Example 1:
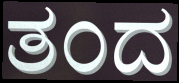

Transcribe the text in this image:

ತಂದ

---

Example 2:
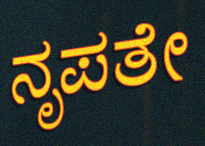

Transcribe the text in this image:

ನೃಪತೇ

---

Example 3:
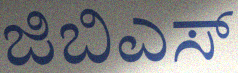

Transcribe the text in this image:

ಜಿಬಿಎಸ್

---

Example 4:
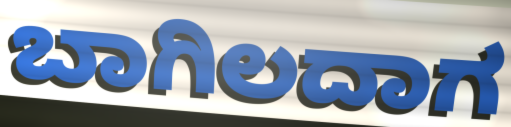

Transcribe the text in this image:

ಬಾಗಿಲದಾಗ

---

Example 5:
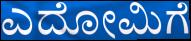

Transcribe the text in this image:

ಎದೋಮಿಗೆ